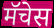
मॅचेस